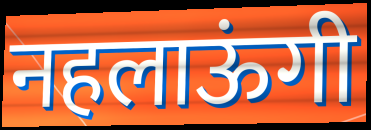
नहलाऊंगी